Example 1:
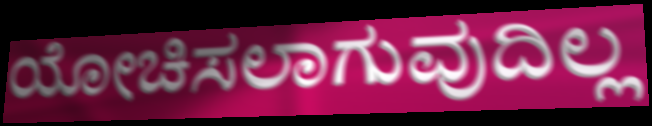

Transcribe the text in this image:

ಯೋಚಿಸಲಾಗುವುದಿಲ್ಲ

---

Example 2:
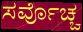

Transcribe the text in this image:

ಸರ್ವೊಚ್ಚ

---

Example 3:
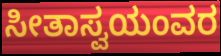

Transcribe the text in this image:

ಸೀತಾಸ್ವಯಂವರ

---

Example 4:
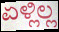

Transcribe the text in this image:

ಏಳ್ಲಿಲ್ಲ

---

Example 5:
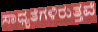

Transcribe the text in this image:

ಸಾಧ್ಯತೆಗಳಿರುತ್ತವೆ